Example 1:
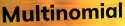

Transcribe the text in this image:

Multinomial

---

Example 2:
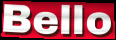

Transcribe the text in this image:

Bello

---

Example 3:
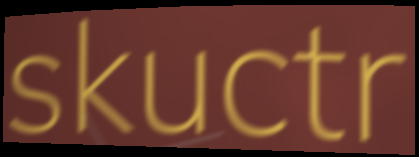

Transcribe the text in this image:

skuctr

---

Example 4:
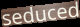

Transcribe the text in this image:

seduced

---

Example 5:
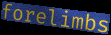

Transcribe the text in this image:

forelimbs